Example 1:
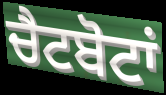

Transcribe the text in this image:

ਚੈਟਬੋਟਾਂ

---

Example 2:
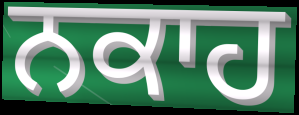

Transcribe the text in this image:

ਨਕਾਹ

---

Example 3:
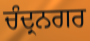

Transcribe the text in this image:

ਚੰਦ੍ਰਨਗਰ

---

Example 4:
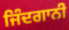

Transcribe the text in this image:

ਜਿੰਦਗਾਨੀ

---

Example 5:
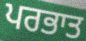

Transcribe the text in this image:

ਪਰਭਾਤ